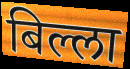
बिल्ला